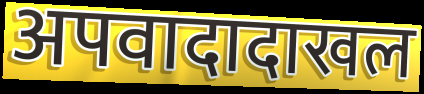
अपवादादाखल